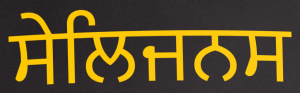
ਸੇਲਿਜਨਸ